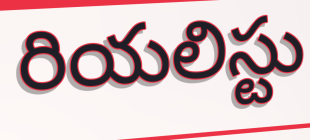
రియలిస్టు